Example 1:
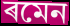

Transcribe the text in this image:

ৰমেন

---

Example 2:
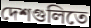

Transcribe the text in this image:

দেশগুলিতে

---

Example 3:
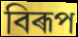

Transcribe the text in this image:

বিৰূপ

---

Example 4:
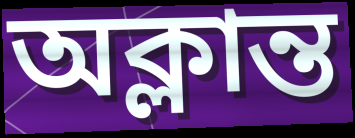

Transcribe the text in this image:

অক্লান্ত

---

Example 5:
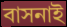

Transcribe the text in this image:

বাসনাই